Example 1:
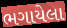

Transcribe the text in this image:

ભગાયેલા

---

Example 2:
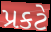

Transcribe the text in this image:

પ્રકટે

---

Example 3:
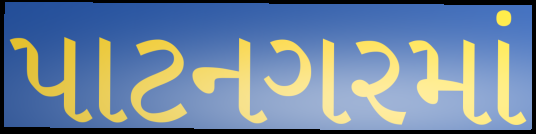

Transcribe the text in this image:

પાટનગરમાં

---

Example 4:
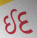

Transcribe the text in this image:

ઈદ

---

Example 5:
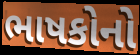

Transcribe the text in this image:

ભાષકોનો